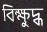
বিক্ষুদ্ধ